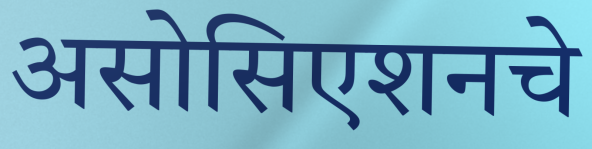
असोसिएशनचे